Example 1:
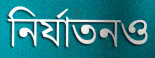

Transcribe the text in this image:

নির্যাতনও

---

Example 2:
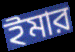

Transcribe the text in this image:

ইমার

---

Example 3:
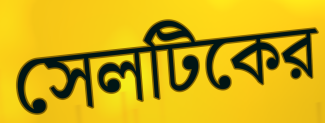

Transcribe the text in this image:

সেলটিকের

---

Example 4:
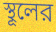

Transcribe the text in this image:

স্থূলের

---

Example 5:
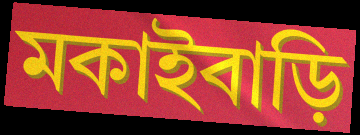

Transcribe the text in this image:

মকাইবাড়ি